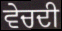
ਵੇਚਦੀ